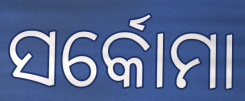
ସର୍କୋମା